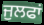
ਜੁਲਫਾਂ